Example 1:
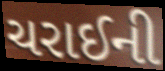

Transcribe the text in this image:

ચરાઈની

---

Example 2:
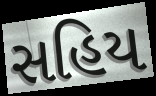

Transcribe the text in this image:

સહિય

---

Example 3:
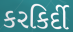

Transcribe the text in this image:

કરકિર્દી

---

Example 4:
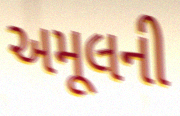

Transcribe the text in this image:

અમૂલની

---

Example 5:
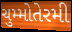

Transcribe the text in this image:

ચુમ્મોતેરમી